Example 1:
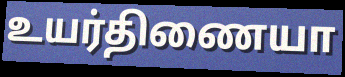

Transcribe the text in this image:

உயர்திணையா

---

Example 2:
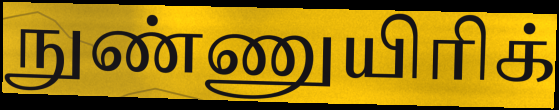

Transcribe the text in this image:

நுண்ணுயிரிக்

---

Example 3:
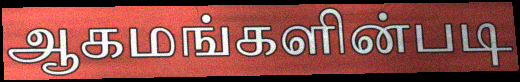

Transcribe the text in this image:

ஆகமங்களின்படி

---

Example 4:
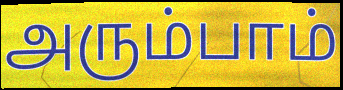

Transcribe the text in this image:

அரும்பாம்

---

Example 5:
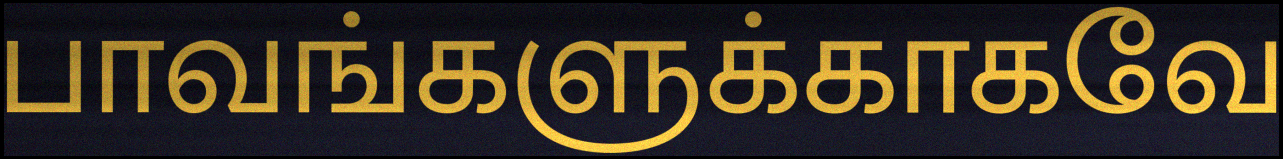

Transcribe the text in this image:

பாவங்களுக்காகவே